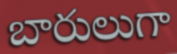
బారులుగా